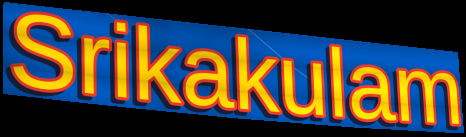
Srikakulam